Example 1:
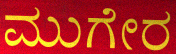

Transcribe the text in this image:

ಮುಗೇರ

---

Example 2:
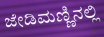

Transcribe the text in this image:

ಜೇಡಿಮಣ್ಣಿನಲ್ಲಿ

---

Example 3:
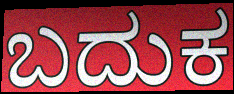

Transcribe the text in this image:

ಬದುಕ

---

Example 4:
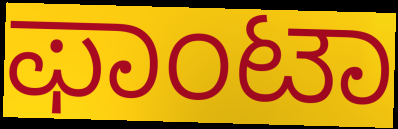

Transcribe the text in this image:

ಫಾಂಟಾ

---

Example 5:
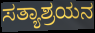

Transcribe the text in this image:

ಸತ್ಯಾಶ್ರಯನ